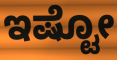
ಇಷ್ಟೋ